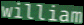
william